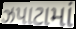
ઝપાટામાં